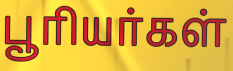
பூரியர்கள்